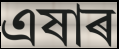
এষাৰ